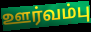
ஊர்வம்பு